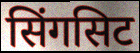
सिंगसिट